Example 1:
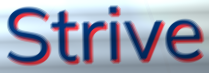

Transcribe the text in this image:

Strive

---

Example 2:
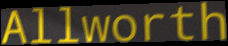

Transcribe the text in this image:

Allworth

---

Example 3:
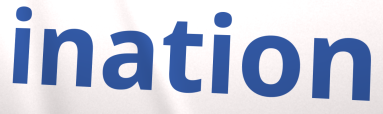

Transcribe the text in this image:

ination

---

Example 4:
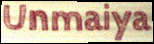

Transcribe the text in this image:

Unmaiya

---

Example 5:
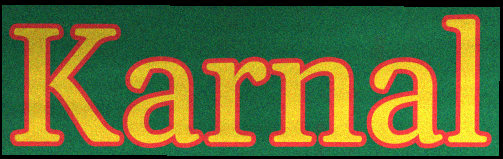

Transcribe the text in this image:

Karnal